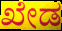
ಖೇಡ